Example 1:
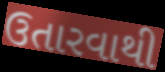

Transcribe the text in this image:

ઉતારવાથી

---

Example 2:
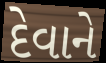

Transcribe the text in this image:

દેવાને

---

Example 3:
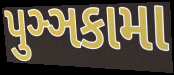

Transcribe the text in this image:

પુઞ્ઞકામા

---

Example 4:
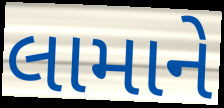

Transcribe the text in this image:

લામાને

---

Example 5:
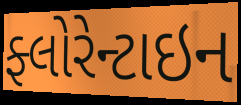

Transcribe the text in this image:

ફ્લોરેન્ટાઇન